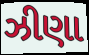
ઝીણા